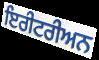
ਇਰੀਟਰੀਅਨ